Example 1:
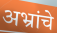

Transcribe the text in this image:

अभ्रांचे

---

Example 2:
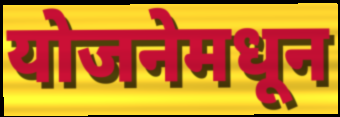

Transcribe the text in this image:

योजनेमधून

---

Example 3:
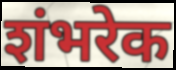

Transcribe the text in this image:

शंभरेक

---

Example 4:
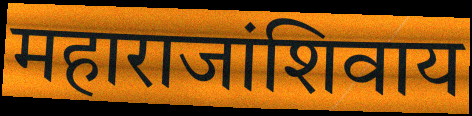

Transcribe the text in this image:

महाराजांशिवाय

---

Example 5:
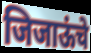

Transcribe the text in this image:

जिजाऊंचे